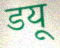
डयू